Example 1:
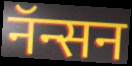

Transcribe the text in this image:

नॅन्सन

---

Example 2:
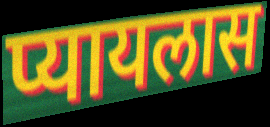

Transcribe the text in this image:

प्यायलास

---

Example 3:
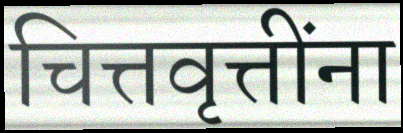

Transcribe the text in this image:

चित्तवृत्तींना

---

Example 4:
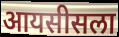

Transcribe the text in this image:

आयसीसला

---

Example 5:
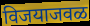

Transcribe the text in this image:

विजयाजवळ